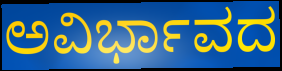
ಅವಿರ್ಭಾವದ